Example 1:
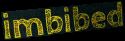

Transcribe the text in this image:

imbibed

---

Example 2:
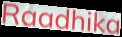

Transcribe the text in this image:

Raadhika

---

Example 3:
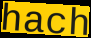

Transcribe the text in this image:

hach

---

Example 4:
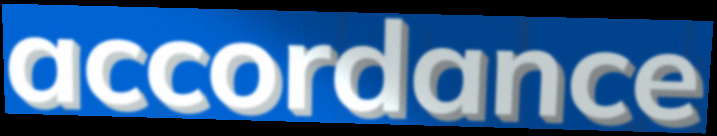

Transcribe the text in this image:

accordance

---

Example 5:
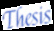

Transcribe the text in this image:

Thesis